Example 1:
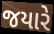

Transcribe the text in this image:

જયારે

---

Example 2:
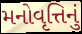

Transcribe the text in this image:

મનોવૃત્તિનું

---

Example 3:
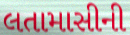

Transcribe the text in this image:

લતામાસીની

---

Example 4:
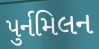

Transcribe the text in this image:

પુર્નમિલન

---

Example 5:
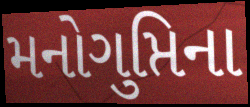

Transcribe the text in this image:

મનોગુપ્તિના